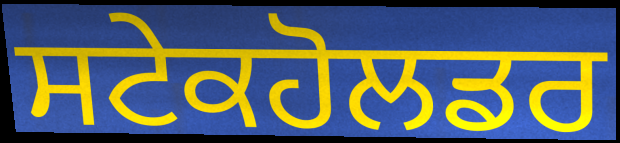
ਸਟੇਕਹੋਲਡਰ